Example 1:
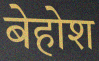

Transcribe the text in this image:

बेहोश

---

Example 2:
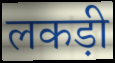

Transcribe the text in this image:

लकड़ी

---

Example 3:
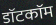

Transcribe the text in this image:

डॉटकॉम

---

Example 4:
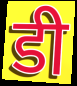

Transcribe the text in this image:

डी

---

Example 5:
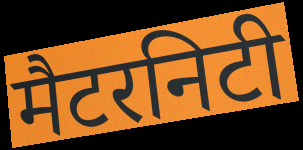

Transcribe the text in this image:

मैटरनिटी